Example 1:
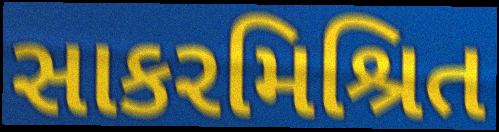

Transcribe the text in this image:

સાકરમિશ્રિત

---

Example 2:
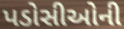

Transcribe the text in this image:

પડોસીઓની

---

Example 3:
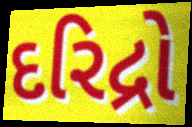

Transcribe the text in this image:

દરિદ્રો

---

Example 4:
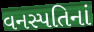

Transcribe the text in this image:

વનસ્પતિનાં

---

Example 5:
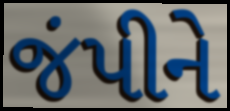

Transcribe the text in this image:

જંપીને